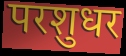
परशुधर